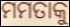
ମମତାକୁ